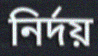
নিৰ্দয়